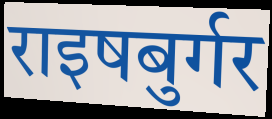
राइषबुर्गर